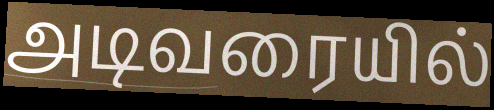
அடிவரையில்